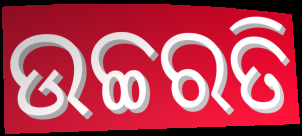
ଉଚ୍ଚରତି